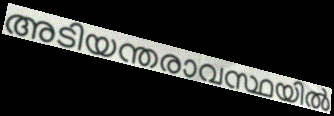
അടിയന്തരാവസ്ഥയിൽ